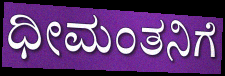
ಧೀಮಂತನಿಗೆ